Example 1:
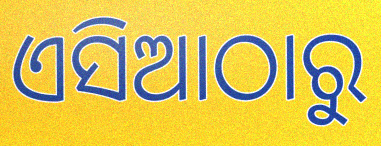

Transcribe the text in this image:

ଏସିଆଠାରୁ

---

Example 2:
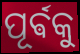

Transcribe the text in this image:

ପୂର୍ଵକୁ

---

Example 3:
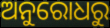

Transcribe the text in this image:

ଅନୁରୋଧରୁ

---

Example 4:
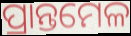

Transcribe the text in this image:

ପ୍ରାନ୍ତମେଳ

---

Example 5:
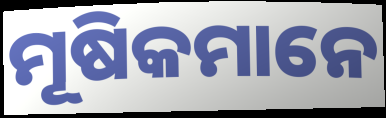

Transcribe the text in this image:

ମୂଷିକମାନେ